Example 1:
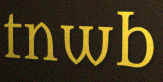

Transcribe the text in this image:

tnwb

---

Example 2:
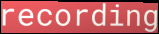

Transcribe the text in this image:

recording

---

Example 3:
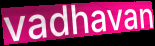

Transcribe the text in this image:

vadhavan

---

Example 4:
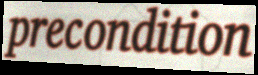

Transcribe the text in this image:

precondition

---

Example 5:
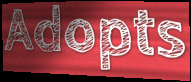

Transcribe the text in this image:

Adopts